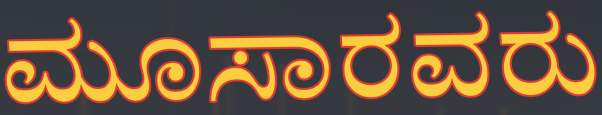
ಮೂಸಾರವರು